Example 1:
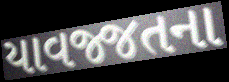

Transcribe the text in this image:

યાવજ્જતના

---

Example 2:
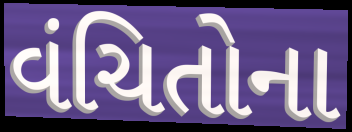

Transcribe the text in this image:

વંચિતોના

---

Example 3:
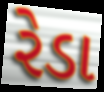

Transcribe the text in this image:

રેડા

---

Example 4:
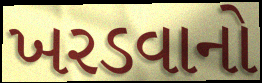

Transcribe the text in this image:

ખરડવાનો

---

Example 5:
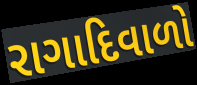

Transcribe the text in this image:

રાગાદિવાળો